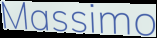
Massimo